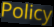
Policy